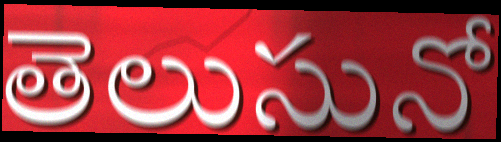
తెలుసునో